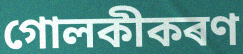
গোলকীকৰণ